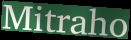
Mitraho